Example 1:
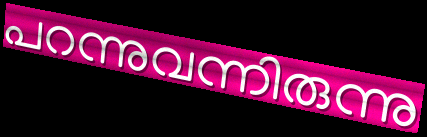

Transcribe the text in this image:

പറന്നുവന്നിരുന്നു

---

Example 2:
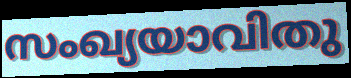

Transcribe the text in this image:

സംഖ്യയാവിതു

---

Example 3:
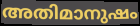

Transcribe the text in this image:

അതിമാനുഷം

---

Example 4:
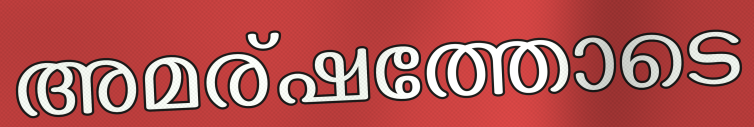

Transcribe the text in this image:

അമര്ഷത്തോടെ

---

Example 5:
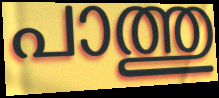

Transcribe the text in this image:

പാത്തു